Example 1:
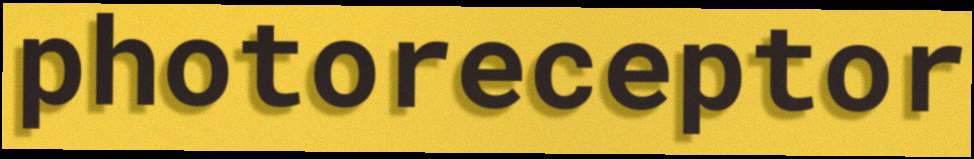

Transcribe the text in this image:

photoreceptor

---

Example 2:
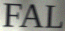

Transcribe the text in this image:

FAL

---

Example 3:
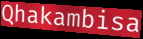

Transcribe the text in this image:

Qhakambisa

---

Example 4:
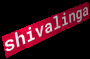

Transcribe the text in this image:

shivalinga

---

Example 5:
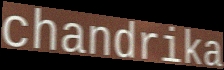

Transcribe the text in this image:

chandrika